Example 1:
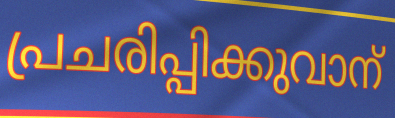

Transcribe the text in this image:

പ്രചരിപ്പിക്കുവാന്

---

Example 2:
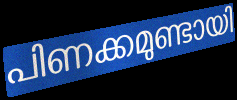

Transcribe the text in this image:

പിണക്കമുണ്ടായി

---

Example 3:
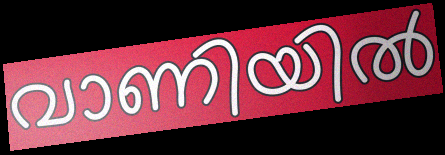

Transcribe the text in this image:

വാണിയിൽ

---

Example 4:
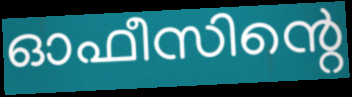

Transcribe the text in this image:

ഓഫീസിന്റെ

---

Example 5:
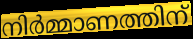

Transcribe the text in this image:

നിർമ്മാണത്തിന്